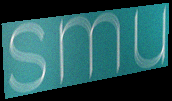
smu